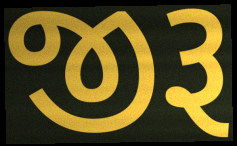
જીરૂ